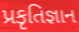
પ્રકૃતિજ્ઞાન